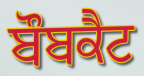
ਬੌਬਕੈਟ